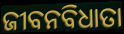
ଜୀବନବିଧାତା